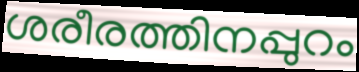
ശരീരത്തിനപ്പുറം